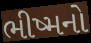
ભીષ્મનો